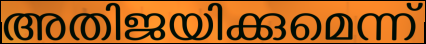
അതിജയിക്കുമെന്ന്